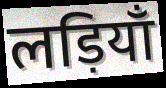
लड़ियाँ